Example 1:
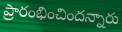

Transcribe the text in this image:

ప్రారంభించిందన్నారు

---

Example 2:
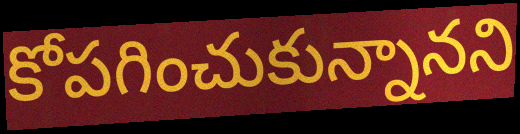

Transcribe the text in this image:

కోపగించుకున్నానని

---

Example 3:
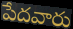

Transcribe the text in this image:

పేదవారు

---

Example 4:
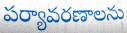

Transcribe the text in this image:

పర్యావరణాలను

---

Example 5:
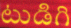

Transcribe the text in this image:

టుడిగి